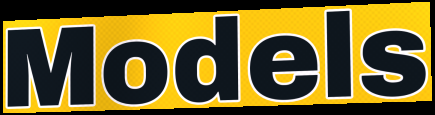
Models